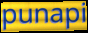
punapi